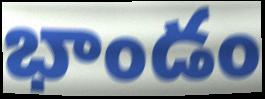
భాండం